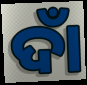
ଦାଁ